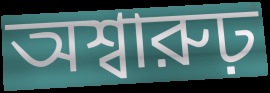
অশ্বারুঢ়